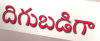
దిగుబడిగా